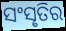
ସଂସୃତିର